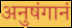
अनुषंगानं